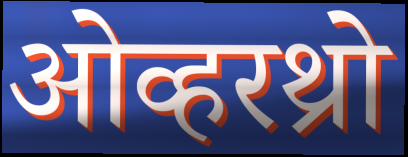
ओव्हरथ्रो